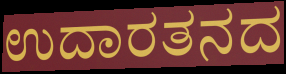
ಉದಾರತನದ